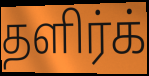
தளிர்க்